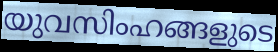
യുവസിംഹങ്ങളുടെ